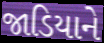
જાડિયાને